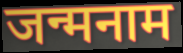
जन्मनाम